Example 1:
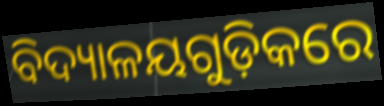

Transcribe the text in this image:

ବିଦ୍ୟାଳୟଗୁଡ଼ିକରେ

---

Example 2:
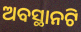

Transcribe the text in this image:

ଅବସ୍ଥାନଟି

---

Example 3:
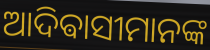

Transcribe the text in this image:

ଆଦିଵାସୀମାନଙ୍କ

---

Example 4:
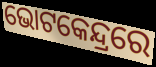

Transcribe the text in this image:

ଭୋଟକେନ୍ଦ୍ରରେ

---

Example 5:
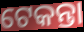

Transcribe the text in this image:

ଟେକନ୍ତା